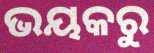
ଭୟକରୁ